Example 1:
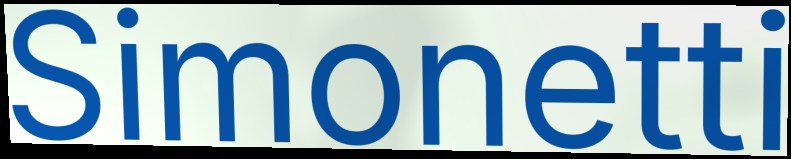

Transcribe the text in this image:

Simonetti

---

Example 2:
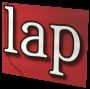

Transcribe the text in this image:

lap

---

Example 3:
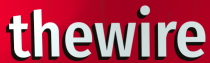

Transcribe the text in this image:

thewire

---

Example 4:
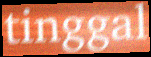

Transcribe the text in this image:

tinggal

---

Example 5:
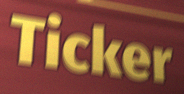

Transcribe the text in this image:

Ticker